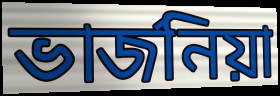
ভাৰ্জনিয়া